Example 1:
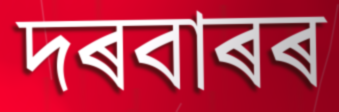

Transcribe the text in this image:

দৰবাৰৰ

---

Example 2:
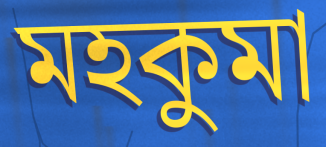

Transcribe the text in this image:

মহকুমা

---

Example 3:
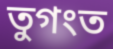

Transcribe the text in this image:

তুগংত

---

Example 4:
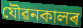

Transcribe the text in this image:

যৌৱনকালৰ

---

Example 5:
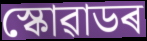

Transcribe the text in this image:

স্কোৱাডৰ